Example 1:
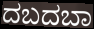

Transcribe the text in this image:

ದಬದಬಾ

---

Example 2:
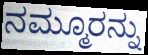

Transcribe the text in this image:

ನಮ್ಮೂರನ್ನು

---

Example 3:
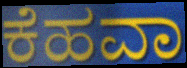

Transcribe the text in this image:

ಕೆಹವಾ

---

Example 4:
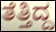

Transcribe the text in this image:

ತೆತ್ತಿದ್ದ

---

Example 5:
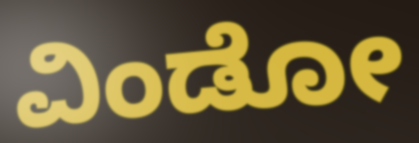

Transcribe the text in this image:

ವಿಂಡೋ